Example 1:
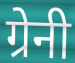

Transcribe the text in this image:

ग्रेनी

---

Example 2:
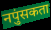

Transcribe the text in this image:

नपुंसकता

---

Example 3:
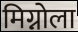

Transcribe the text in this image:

मिग्नोला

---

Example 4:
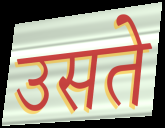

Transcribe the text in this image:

उसते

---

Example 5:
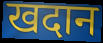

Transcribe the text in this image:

खदान